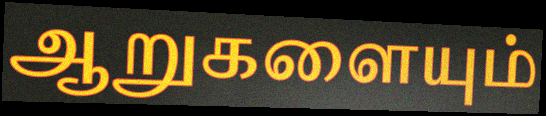
ஆறுகளையும்